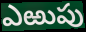
ఎఱుపు